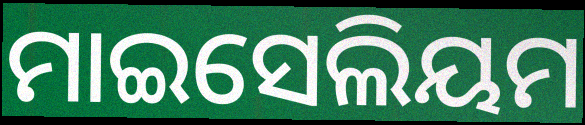
ମାଇସେଲିୟମ